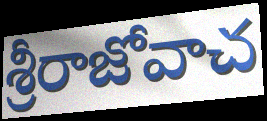
శ్రీరాజోవాచ